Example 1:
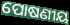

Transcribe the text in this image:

ପୋଷଣୀୟ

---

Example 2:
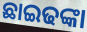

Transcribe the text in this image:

ଛାଇଢଙ୍କା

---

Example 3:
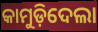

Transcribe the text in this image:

କାମୁଡ଼ିଦେଲା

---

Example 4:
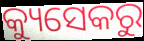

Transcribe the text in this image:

କ୍ୟୁସେକରୁ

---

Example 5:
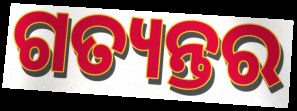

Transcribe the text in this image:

ଗତ୍ୟନ୍ତର